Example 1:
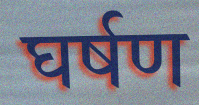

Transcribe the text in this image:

घर्षण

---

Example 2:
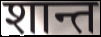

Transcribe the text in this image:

शान्त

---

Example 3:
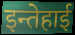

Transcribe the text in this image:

इन्तेहाई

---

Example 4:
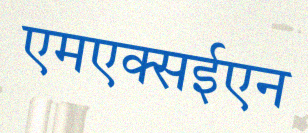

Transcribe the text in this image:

एमएक्सईएन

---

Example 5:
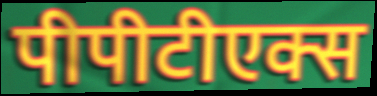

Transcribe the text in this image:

पीपीटीएक्स